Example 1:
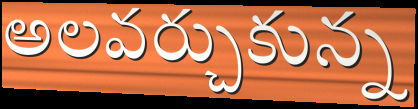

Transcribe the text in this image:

అలవర్చుకున్న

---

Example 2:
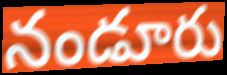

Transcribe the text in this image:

నండూరు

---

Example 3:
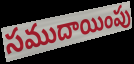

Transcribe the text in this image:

సముదాయింపు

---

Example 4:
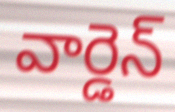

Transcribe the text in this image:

వార్డెన్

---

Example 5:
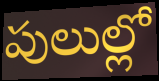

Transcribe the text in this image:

పులుల్లో